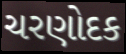
ચરણોદક